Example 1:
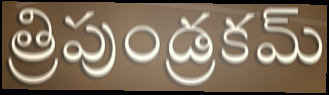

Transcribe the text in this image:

త్రిపుండ్రకమ్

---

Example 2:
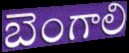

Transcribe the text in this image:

బెంగాలి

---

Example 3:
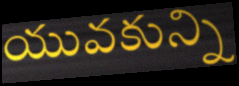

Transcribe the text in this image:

యువకున్ని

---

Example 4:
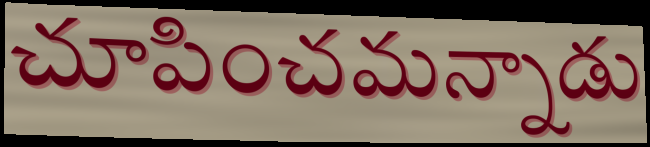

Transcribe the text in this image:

చూపించమన్నాడు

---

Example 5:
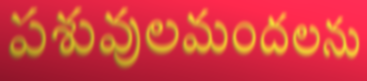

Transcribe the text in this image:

పశువులమందలను